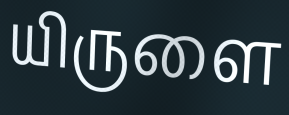
யிருளை